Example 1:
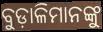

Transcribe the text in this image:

ବୁଡ଼ାଳିମାନଙ୍କୁ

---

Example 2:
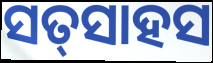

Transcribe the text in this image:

ସତ୍‌ସାହସ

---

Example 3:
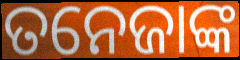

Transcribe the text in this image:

ତନେଜାଙ୍କ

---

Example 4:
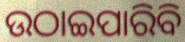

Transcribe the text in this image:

ଉଠାଇପାରିବି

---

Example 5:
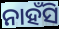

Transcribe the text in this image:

ନାହଁସି